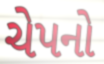
ચેપનો